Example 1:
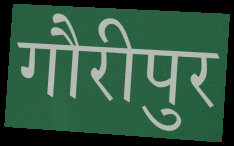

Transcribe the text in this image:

गौरीपुर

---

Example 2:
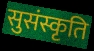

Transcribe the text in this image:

सुसंस्कृति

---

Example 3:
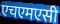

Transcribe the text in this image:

एचएमएसी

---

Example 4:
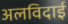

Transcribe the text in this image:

अलविदाई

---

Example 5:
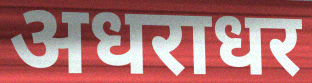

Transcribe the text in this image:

अधराधर